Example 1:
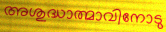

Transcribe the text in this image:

അശുദ്ധാത്മാവിനോടു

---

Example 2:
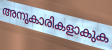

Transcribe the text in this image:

അനുകാരികളാകുക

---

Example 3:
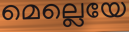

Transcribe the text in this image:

മെല്ലെയേ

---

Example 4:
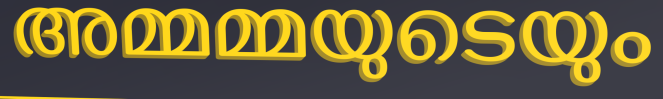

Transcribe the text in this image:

അമ്മമ്മയുടെയും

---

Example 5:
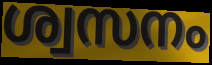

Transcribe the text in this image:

ശ്വസനം